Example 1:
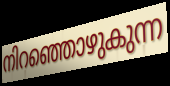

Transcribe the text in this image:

നിറഞ്ഞൊഴുകുന്ന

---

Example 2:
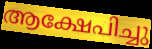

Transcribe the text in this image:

ആക്ഷേപിച്ചു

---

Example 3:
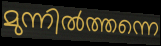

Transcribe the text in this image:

മുന്നിൽത്തന്നെ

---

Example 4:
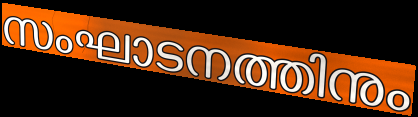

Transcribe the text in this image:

സംഘാടനത്തിനും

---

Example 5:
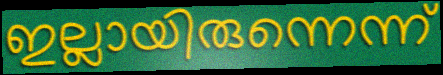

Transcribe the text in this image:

ഇല്ലായിരുന്നെന്ന്